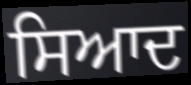
ਸਿਆਦ